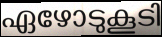
ഏഴോടുകൂടി